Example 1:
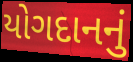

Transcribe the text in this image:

યોગદાનનું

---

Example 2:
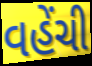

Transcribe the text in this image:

વહેંચી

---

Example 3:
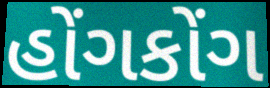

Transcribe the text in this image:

હોંગકોંગ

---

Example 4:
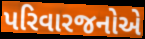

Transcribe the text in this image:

પરિવારજનોએ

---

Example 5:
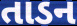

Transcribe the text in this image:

તાડન